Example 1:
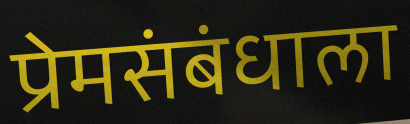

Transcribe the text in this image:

प्रेमसंबंधाला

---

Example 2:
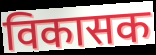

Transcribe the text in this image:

विकासक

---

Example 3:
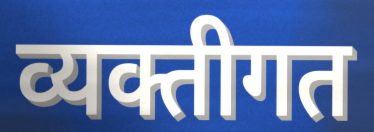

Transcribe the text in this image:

व्यक्तीगत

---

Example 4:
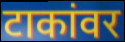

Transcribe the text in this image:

टाकांवर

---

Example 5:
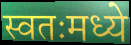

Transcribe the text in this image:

स्वतःमध्ये